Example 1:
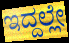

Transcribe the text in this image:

ಇದ್ದಲ್ಲೇ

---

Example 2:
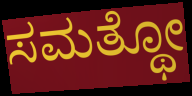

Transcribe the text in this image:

ಸಮತ್ಥೋ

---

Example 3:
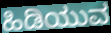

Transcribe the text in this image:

ಹಿಡಿಯುವ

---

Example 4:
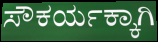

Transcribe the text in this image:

ಸೌಕರ್ಯಕ್ಕಾಗಿ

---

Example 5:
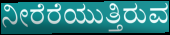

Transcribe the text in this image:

ನೀರೆರೆಯುತ್ತಿರುವ